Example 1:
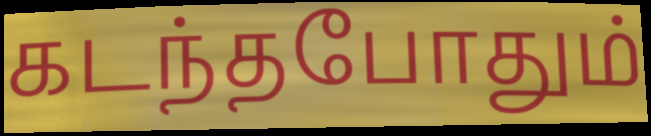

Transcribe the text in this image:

கடந்தபோதும்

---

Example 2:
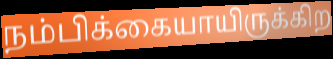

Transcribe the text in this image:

நம்பிக்கையாயிருக்கிற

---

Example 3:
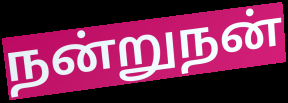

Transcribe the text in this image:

நன்றுநன்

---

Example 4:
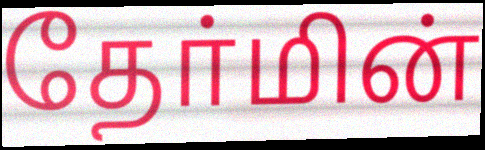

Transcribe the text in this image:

தேர்மின்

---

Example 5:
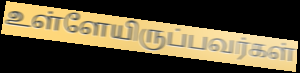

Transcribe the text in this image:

உள்ளேயிருப்பவர்கள்